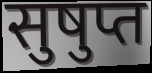
सुषुप्त